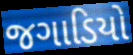
જગાડિયો